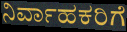
ನಿರ್ವಾಹಕರಿಗೆ